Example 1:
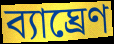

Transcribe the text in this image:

ব্যাঘ্রেণ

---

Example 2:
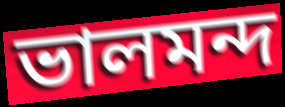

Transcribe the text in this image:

ভালমন্দ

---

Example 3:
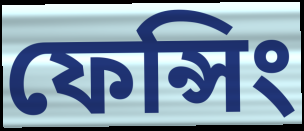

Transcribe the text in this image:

ফেন্সিং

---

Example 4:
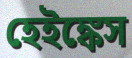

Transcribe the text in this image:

হেইঙ্কেস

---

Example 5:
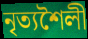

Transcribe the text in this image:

নৃত্যশৈলী